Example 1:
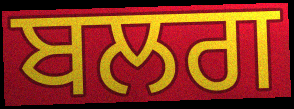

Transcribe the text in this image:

ਬਲਗ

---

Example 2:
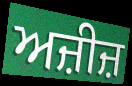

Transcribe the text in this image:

ਅਜ਼ੀਜ਼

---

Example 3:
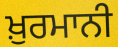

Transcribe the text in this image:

ਖ਼ੁਰਮਾਨੀ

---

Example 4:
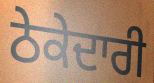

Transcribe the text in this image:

ਠੇਕੇਦਾਰੀ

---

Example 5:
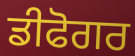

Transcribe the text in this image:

ਡੀਫੋਗਰ